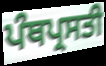
ਪੰਥਪ੍ਰਸਤੀ